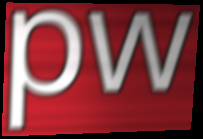
pw